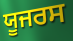
ਯੂਜਰਸ